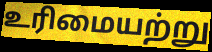
உரிமையற்று